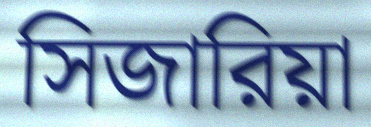
সিজারিয়া